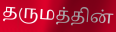
தருமத்தின்